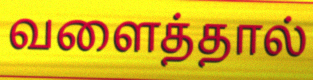
வளைத்தால்